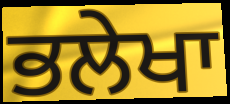
ਭਲੇਖਾ